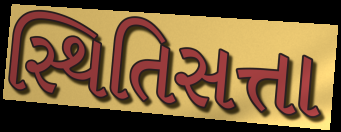
સ્થિતિસત્તા